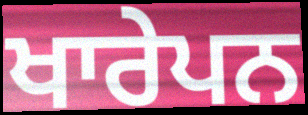
ਖਾਰੇਪਨ